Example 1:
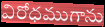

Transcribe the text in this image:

విరోధముగాను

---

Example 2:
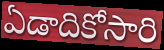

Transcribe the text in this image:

ఏడాదికోసారి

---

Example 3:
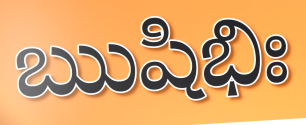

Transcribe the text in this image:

ఋషిభిః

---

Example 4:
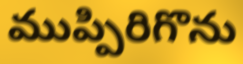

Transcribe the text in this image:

ముప్పిరిగొను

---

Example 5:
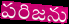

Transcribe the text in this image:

పరిజను